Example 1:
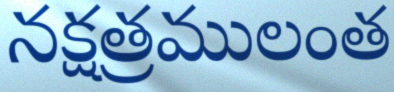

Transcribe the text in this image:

నక్షత్రములంత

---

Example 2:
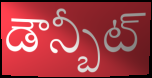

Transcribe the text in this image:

డౌన్బీట్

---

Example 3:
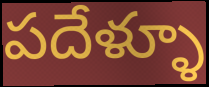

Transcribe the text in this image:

పదేళ్ళూ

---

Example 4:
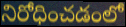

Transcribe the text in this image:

నిరోధించడంలో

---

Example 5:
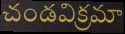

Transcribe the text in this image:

చండవిక్రమా